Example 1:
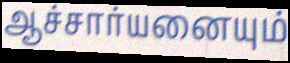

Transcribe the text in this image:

ஆச்சார்யனையும்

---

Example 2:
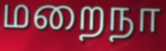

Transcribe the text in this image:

மறைநா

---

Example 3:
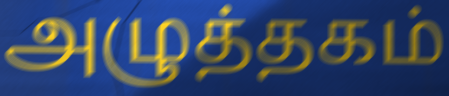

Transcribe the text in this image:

அழுத்தகம்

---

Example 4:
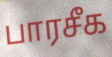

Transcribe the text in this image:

பாரசீக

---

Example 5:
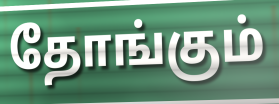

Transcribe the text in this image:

தோங்கும்